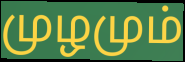
முழமும்